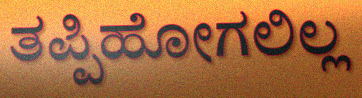
ತಪ್ಪಿಹೋಗಲಿಲ್ಲ